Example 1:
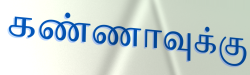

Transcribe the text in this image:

கண்ணாவுக்கு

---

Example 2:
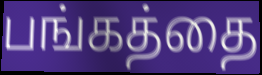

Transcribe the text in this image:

பங்கத்தை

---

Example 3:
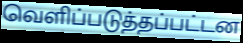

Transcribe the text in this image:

வெளிப்படுத்தப்பட்டன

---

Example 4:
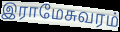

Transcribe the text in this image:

இராமேசுவரம்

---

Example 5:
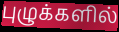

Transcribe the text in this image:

புழுக்களில்